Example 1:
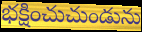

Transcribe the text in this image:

భక్షించుచుండును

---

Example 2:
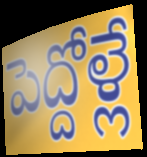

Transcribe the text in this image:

పెద్దోళ్లే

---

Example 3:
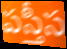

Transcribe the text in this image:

పస్తీస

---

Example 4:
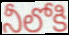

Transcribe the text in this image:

నీలోకి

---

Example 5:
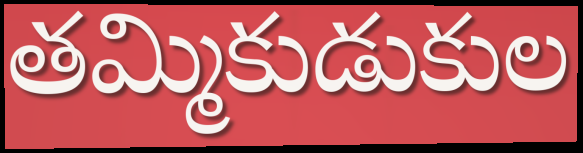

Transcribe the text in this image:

తమ్మికుడుకుల